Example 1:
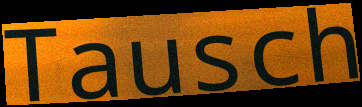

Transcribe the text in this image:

Tausch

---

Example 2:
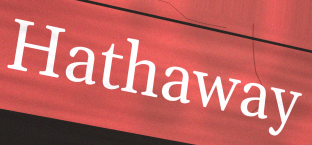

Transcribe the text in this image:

Hathaway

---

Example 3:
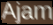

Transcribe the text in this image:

Ajam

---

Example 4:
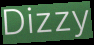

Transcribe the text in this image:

Dizzy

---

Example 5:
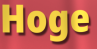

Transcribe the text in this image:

Hoge